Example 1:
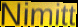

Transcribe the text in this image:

Nimitt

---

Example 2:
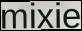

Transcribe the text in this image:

mixie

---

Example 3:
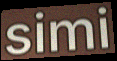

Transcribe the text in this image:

simi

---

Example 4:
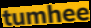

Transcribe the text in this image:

tumhee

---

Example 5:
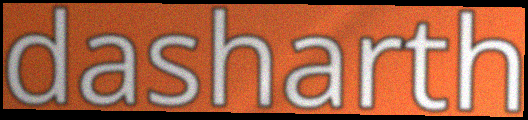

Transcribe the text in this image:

dasharth